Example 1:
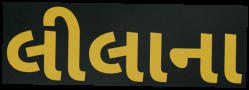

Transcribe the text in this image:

લીલાના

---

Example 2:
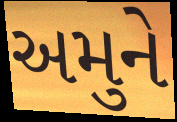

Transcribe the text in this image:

અમુને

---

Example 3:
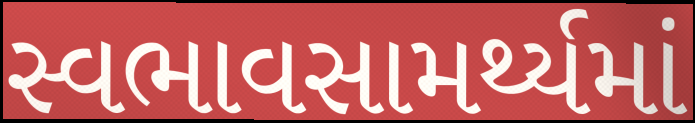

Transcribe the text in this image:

સ્વભાવસામર્થ્યમાં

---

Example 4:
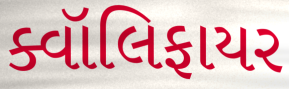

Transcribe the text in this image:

ક્વૉલિફાયર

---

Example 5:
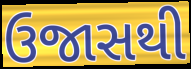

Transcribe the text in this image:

ઉજાસથી